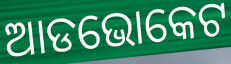
ଆଡଭୋକେଟ